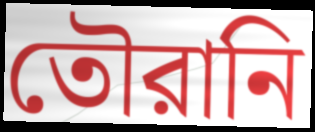
তৌরানি